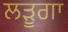
ਲੜੂਗਾ